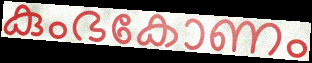
കുംഭകോണം